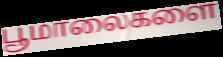
பூமாலைகளை